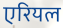
एरियल